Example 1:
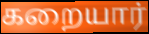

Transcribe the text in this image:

கறையார்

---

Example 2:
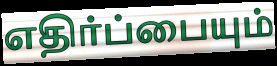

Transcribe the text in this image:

எதிர்ப்பையும்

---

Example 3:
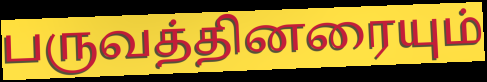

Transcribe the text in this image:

பருவத்தினரையும்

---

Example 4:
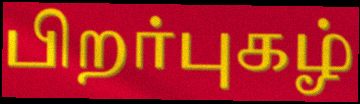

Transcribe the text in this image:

பிறர்புகழ்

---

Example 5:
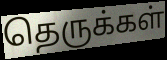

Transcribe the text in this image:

தெருக்கள்